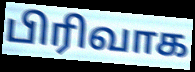
பிரிவாக